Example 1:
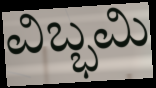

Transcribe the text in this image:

ವಿಬ್ಭಮಿ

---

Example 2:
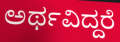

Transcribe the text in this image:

ಅರ್ಥವಿದ್ದರೆ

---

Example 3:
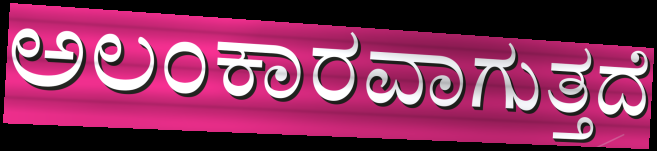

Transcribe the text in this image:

ಅಲಂಕಾರವಾಗುತ್ತದೆ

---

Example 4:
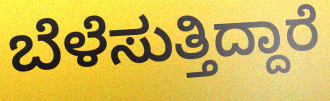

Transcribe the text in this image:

ಬೆಳೆಸುತ್ತಿದ್ದಾರೆ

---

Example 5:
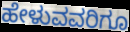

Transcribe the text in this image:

ಹೇಳುವವರಿಗೂ